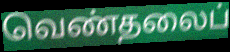
வெண்தலைப்